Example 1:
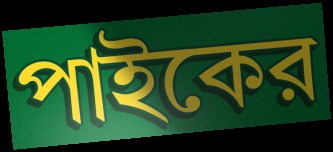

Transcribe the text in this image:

পাইকের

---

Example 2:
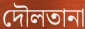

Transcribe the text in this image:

দৌলতানা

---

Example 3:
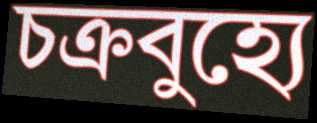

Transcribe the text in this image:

চক্রবুহ্যে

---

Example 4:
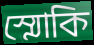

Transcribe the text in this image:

স্মোকি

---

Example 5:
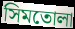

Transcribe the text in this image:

সিমতোলা